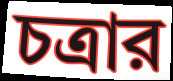
চত্রার